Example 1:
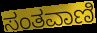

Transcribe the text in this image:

ಸಂತವಾಣಿ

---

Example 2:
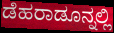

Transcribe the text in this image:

ಡೆಹರಾಡೂನ್ನಲ್ಲಿ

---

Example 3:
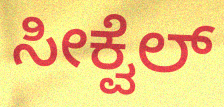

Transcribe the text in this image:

ಸೀಕ್ವೆಲ್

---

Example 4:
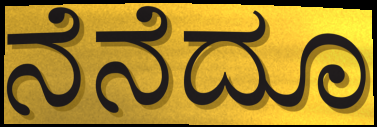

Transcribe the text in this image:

ನೆನೆದೂ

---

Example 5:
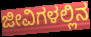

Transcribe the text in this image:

ಜೀವಿಗಳಲ್ಲಿನ